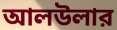
আলউলার